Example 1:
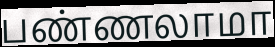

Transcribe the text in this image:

பண்ணலாமா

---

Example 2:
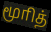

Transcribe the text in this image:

மூரித்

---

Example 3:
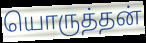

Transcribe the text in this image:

யொருத்தன்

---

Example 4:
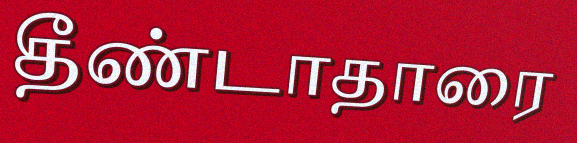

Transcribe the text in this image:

தீண்டாதாரை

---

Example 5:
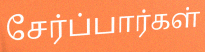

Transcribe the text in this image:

சேர்ப்பார்கள்